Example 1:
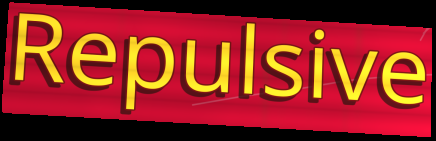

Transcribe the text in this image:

Repulsive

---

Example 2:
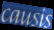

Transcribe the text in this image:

causis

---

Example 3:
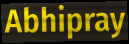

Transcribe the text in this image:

Abhipray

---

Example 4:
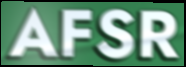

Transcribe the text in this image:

AFSR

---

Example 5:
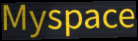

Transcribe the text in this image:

Myspace